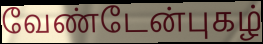
வேண்டேன்புகழ்